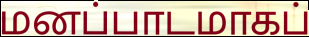
மனப்பாடமாகப்